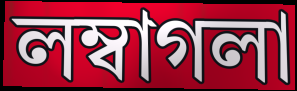
লম্বাগলা